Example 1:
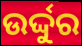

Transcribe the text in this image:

ଉର୍ଦ୍ଦୁର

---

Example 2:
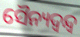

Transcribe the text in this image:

ସୈନ୍ୟଦ୍ୱନ୍ଦ୍ୱ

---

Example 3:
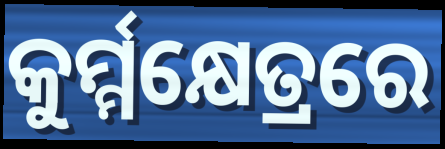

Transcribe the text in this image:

କୁର୍ମ୍ମକ୍ଷେତ୍ରରେ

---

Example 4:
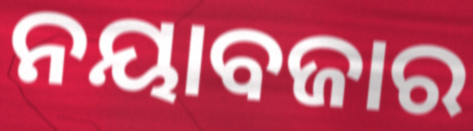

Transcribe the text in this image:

ନୟାବଜାର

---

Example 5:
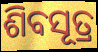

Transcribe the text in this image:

ଶିବସୂତ୍ର